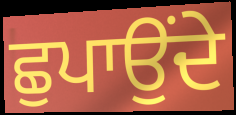
ਛੁਪਾਉਂਦੇ